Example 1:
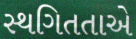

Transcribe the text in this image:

સ્થગિતતાએ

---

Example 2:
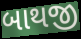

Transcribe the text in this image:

બાથજી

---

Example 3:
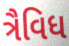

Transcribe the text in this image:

ત્રૈવિધ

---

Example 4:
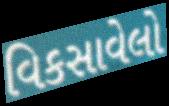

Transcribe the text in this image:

વિકસાવેલો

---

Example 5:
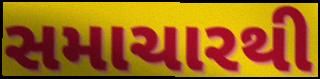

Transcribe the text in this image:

સમાચારથી